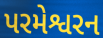
પરમેશ્વરન